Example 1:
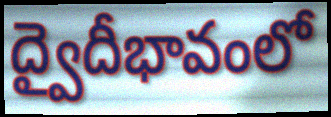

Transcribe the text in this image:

ద్వైదీభావంలో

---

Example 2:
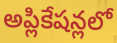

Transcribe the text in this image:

అప్లికేషన్లలో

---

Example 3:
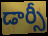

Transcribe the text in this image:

డార్సీ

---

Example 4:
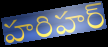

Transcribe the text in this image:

హరిహర్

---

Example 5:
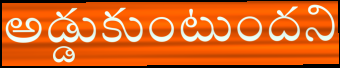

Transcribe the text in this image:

అడ్డుకుంటుందని